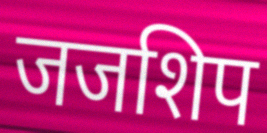
जजशिप